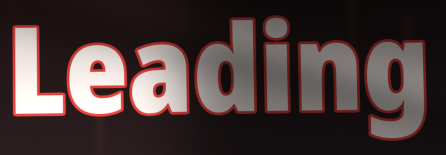
Leading